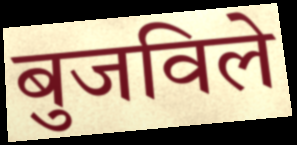
बुजविले